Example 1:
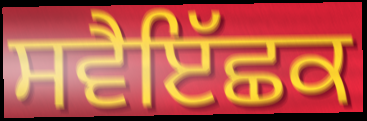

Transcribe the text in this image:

ਸਵੈਇੱਛਕ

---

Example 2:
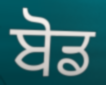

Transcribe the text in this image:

ਬੋਡ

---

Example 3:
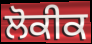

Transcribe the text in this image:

ਲੋਕੀਕ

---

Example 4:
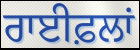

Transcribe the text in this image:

ਰਾਈਫ਼ਲਾਂ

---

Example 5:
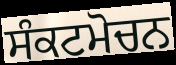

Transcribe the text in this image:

ਸੰਕਟਮੋਚਨ